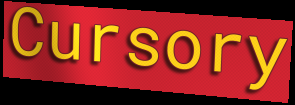
Cursory